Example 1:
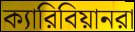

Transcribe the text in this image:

ক্যারিবিয়ানরা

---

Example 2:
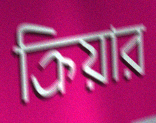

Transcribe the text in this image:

ক্রিয়ার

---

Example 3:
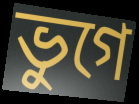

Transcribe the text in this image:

ভুগে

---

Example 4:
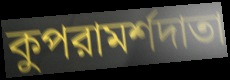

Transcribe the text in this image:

কুপরামর্শদাতা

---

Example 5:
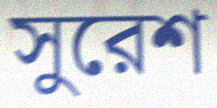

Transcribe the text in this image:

সুরেশ